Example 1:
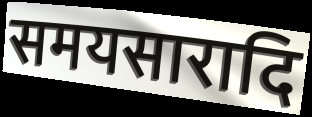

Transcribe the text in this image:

समयसारादि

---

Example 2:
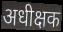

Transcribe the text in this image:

अधीक्षक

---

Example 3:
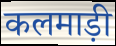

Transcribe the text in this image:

कलमाड़ी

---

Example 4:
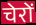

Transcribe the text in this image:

चेरों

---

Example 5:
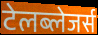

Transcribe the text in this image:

टेलब्लेजर्स